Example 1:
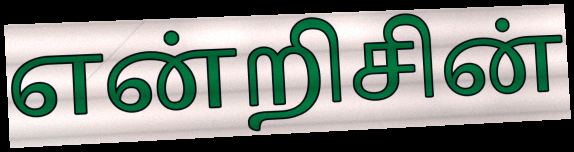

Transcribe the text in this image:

என்றிசின்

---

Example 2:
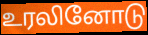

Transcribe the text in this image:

உரலினோடு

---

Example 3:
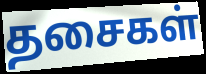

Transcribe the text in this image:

தசைகள்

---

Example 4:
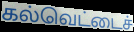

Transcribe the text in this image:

கல்வெட்டைச்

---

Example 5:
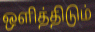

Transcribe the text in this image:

ஒளித்திடும்